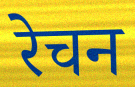
रेचन